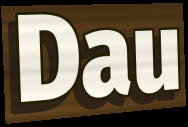
Dau